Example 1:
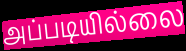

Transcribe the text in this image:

அப்படியில்லை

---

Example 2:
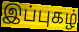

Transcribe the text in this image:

இப்புகழ்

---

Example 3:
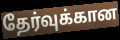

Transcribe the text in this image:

தேர்வுக்கான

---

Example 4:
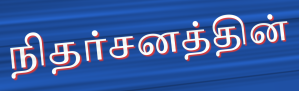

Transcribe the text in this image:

நிதர்சனத்தின்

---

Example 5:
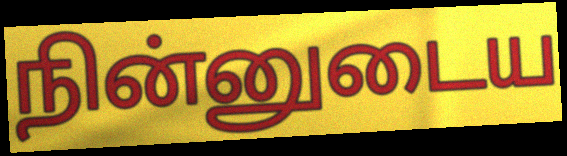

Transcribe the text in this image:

நின்னுடைய